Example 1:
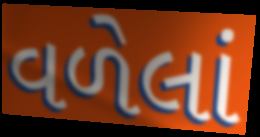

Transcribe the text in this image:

વળેલાં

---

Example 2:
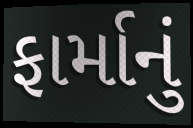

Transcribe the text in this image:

ફાર્માનું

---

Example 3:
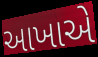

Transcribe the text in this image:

આખાએ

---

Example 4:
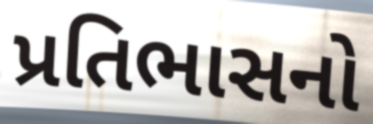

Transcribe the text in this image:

પ્રતિભાસનો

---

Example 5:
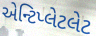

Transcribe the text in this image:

એન્ટિપ્લેટલેટ